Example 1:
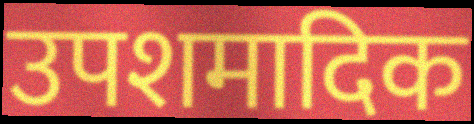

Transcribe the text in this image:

उपशमादिक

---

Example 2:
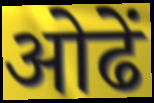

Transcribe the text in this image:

ओढें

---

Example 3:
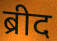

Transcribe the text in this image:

ब्रीद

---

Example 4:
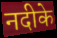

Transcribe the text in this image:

नदीके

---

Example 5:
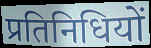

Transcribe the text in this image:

प्रतिनिधियों